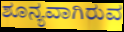
ಶೂನ್ಯವಾಗಿರುವ